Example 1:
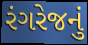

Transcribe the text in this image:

રંગરેજનું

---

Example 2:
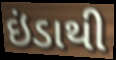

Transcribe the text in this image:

ઇંડાથી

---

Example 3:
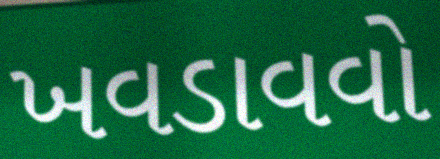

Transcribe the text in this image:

ખવડાવવો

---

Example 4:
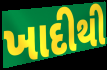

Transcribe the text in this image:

ખાદીથી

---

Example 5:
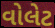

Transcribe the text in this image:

વોલેટ